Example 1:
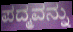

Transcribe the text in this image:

ಪದ್ಮವನ್ನು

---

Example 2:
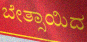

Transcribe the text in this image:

ಬೇತ್ಸಾಯಿದ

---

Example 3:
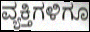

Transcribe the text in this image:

ವ್ಯಕ್ತಿಗಳಿಗೂ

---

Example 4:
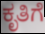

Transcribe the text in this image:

ಕೃತಿಗೆ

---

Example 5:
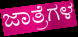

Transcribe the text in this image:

ಜಾತ್ರೆಗಳ